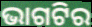
ଭାଗଟିର